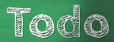
Todo